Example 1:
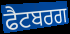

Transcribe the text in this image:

ਫੈਟਬਰਗ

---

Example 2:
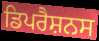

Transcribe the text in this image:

ਡਿਪਰੈਸ਼ਨਸ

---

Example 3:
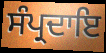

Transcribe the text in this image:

ਸੰਪ੍ਰਦਾਇ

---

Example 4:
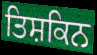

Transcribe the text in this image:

ਤਿਸ਼ਕਿਨ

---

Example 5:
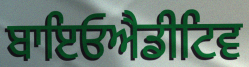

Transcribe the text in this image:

ਬਾਇਓਐਡੀਟਿਵ